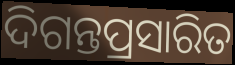
ଦିଗନ୍ତପ୍ରସାରିତ